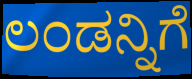
ಲಂಡನ್ನಿಗೆ